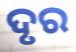
ଦୃର